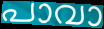
പാവാ